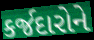
કર્જદારોને